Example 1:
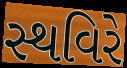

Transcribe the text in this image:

સ્થવિરે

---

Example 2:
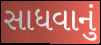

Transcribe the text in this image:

સાધવાનું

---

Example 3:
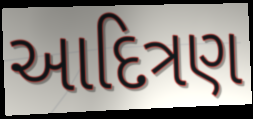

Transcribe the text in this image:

આદિત્રણ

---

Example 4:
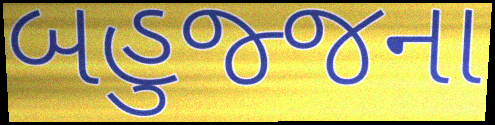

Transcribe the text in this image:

બહુજ્જના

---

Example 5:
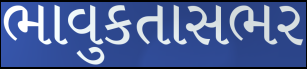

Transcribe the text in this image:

ભાવુકતાસભર